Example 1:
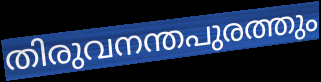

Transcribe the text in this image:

തിരുവനന്തപുരത്തും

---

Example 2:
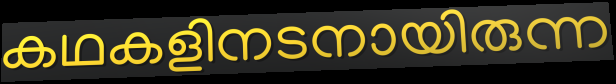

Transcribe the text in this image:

കഥകളിനടനായിരുന്ന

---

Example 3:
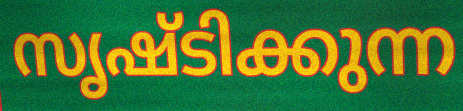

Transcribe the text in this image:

സൃഷ്ടിക്കുന്ന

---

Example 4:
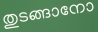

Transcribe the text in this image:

തുടങ്ങാനോ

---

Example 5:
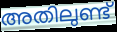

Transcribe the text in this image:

അതിലുണ്ട്